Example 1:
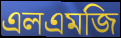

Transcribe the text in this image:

এলএমজি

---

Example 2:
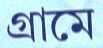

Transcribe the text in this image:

গ্রামে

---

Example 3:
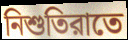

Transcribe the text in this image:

নিশুতিরাতে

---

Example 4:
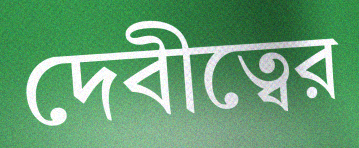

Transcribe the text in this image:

দেবীত্বের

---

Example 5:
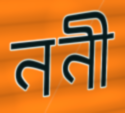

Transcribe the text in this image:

ননী